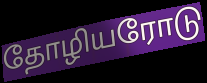
தோழியரோடு